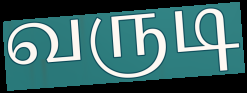
வருடி